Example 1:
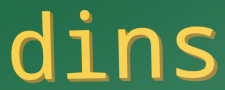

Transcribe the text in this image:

dins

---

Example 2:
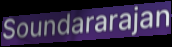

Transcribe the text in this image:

Soundararajan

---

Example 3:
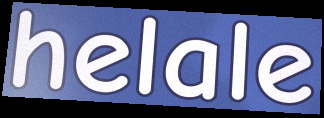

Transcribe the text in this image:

helale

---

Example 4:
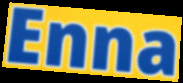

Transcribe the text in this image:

Enna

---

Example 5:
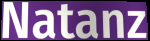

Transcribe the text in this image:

Natanz